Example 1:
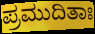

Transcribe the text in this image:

ಪ್ರಮುದಿತಾಃ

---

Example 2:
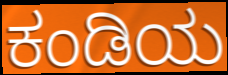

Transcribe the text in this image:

ಕಂಡಿಯ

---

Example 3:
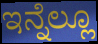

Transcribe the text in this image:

ಇನ್ನೆಲ್ಲೂ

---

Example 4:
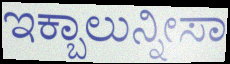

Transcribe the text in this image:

ಇಕ್ಬಾಲುನ್ನೀಸಾ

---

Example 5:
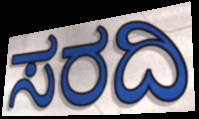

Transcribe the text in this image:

ಸರದಿ